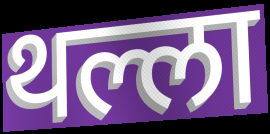
थल्ला